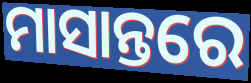
ମାସାନ୍ତରେ